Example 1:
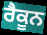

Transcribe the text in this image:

ਰੈਕੂਨ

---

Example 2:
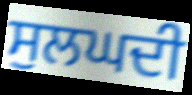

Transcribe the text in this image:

ਸੁਲਘਦੀ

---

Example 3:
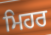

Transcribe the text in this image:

ਮਿਹਰ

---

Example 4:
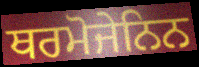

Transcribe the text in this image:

ਥਰਮੋਜੇਨਿਨ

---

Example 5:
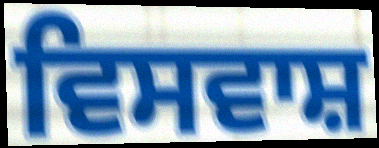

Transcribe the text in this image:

ਵਿਸਵਾਸ਼